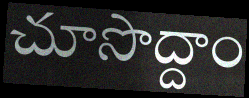
చూసొద్దాం